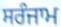
ਸਰੰਜਾਮ